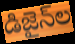
డిజైన్‌ల